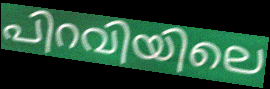
പിറവിയിലെ